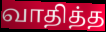
வாதித்த